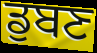
ਡੁਬਣ